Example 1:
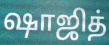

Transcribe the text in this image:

ஷாஜித்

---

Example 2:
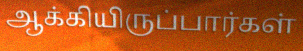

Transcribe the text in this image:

ஆக்கியிருப்பார்கள்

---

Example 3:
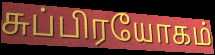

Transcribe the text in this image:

சுப்பிரயோகம்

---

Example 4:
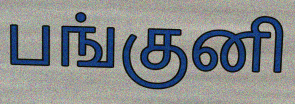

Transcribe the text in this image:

பங்குனி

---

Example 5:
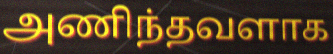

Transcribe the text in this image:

அணிந்தவளாக